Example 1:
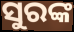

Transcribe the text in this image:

ସୁରଙ୍କ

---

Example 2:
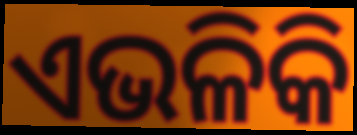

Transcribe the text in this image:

ଏଭଳିକି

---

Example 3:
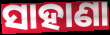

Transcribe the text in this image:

ସାହାଣା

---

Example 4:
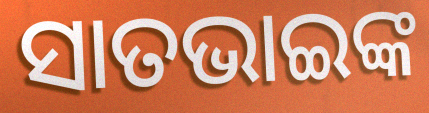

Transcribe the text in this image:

ସାତଭାଇଙ୍କ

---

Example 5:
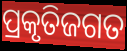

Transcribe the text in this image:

ପ୍ରକୃତିଜଗତ